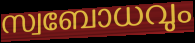
സ്വബോധവും